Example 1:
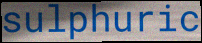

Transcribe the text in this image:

sulphuric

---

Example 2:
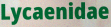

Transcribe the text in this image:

Lycaenidae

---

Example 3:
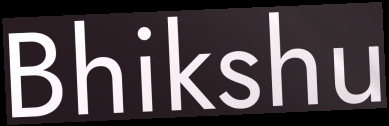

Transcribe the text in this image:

Bhikshu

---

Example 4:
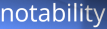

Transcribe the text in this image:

notability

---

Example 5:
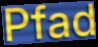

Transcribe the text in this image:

Pfad